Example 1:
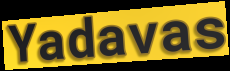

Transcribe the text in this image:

Yadavas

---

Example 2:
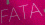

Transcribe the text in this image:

FATA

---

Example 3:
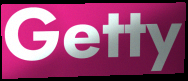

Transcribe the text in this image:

Getty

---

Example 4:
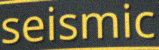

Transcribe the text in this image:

seismic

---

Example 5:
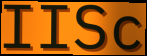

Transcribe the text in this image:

IISc